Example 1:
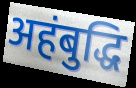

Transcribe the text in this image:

अहंबुद्धि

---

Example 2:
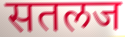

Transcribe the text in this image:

सतलज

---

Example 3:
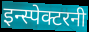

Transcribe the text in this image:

इन्स्पेक्टरनी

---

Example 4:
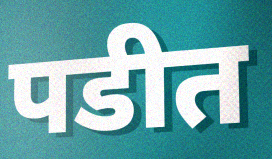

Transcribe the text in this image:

पडीत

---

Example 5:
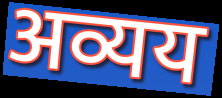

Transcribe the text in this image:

अव्यय